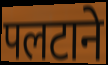
पलटाने